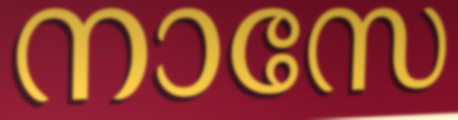
നാസേ